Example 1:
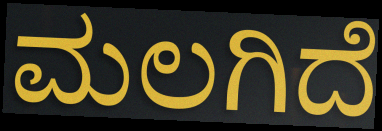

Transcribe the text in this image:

ಮಲಗಿದೆ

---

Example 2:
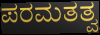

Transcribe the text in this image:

ಪರಮತತ್ವ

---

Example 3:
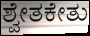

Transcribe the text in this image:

ಶ್ವೇತಕೇತು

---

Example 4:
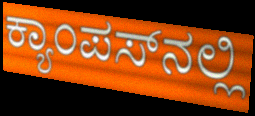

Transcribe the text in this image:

ಕ್ಯಾಂಪಸ್‌ನಲ್ಲಿ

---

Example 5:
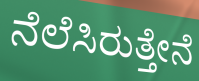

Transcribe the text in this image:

ನೆಲೆಸಿರುತ್ತೇನೆ